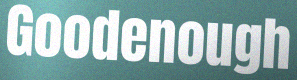
Goodenough